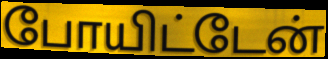
போயிட்டேன்